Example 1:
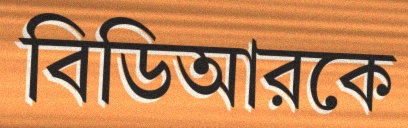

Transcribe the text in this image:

বিডিআরকে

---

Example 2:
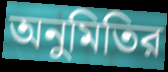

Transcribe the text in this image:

অনুমিতির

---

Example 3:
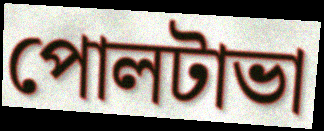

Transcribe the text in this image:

পোলটাভা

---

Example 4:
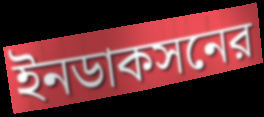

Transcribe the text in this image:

ইনডাকসনের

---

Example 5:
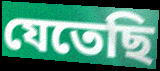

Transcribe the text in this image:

যেতেছি